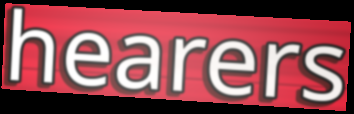
hearers